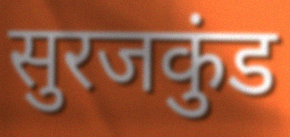
सुरजकुंड